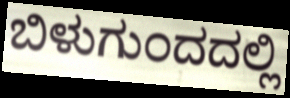
ಬಿಳುಗುಂದದಲ್ಲಿ